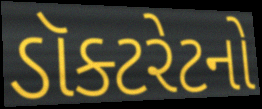
ડૉક્ટરેટનો